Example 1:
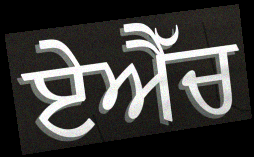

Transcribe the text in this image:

ਏਐੱਚ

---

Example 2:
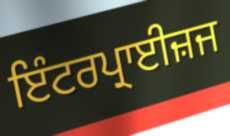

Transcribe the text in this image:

ਇੰਟਰਪ੍ਰਾਈਜ਼ਜ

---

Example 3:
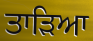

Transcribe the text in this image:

ਤਾੜਿਆ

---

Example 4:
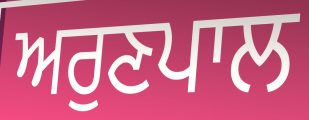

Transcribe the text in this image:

ਅਰੁਣਪਾਲ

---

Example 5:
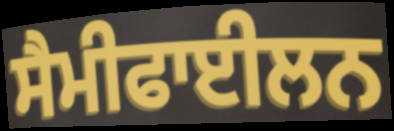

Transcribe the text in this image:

ਸੈਮੀਫਾਈਲਨ